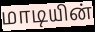
மாடியின்